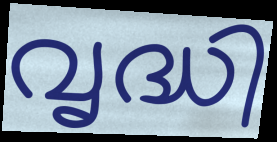
വൃദ്ധി